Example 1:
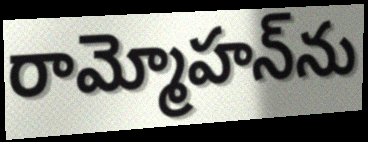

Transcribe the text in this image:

రామ్మోహన్‌ను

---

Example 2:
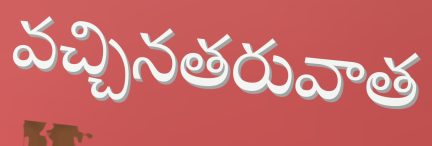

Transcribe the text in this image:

వచ్చినతరువాత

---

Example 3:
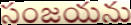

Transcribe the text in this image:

సంజయను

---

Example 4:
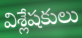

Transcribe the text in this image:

విశ్లేషకులు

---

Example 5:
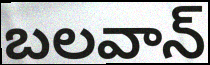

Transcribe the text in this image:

బలవాన్